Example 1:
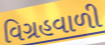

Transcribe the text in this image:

વિગ્રહવાળી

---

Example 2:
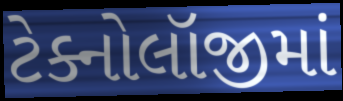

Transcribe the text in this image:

ટેક્નોલૉજીમાં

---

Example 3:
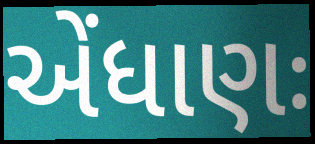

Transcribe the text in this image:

એંધાણઃ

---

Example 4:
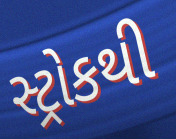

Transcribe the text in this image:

સ્ટ્રોકથી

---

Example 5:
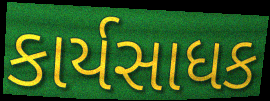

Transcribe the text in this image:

કાર્યસાધક